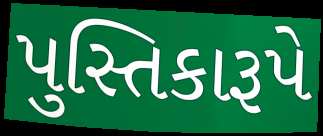
પુસ્તિકારૂપે